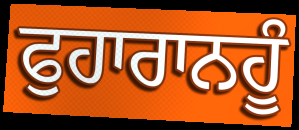
ਫੁਹਾਰਾਨਹੂੰ